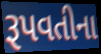
રૂપવતીના